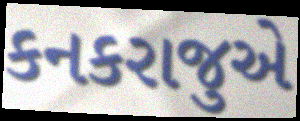
કનકરાજુએ